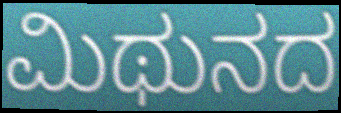
ಮಿಥುನದ